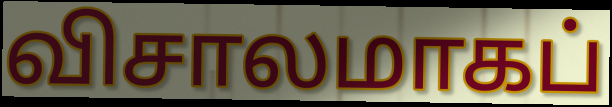
விசாலமாகப்